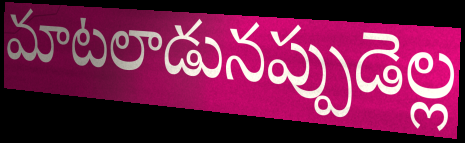
మాటలాడునప్పుడెల్ల